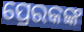
ପ୍ରେରକଙ୍କ